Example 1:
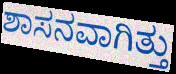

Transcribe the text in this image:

ಶಾಸನವಾಗಿತ್ತು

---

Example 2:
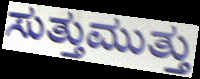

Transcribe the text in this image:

ಸುತ್ತುಮುತ್ತು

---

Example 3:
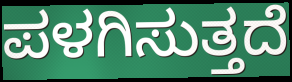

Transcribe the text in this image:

ಪಳಗಿಸುತ್ತದೆ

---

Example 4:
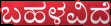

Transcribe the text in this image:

ಬಹಳವಿದೆ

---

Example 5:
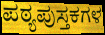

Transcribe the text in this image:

ಪಠ್ಯಪುಸ್ತಕಗಳ